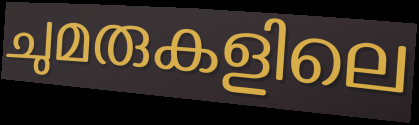
ചുമരുകളിലെ